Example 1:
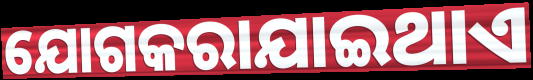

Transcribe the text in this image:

ଯୋଗକରାଯାଇଥାଏ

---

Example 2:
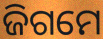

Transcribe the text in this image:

ଜିଗମେ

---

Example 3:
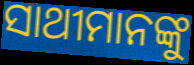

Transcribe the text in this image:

ସାଥୀମାନଙ୍କୁ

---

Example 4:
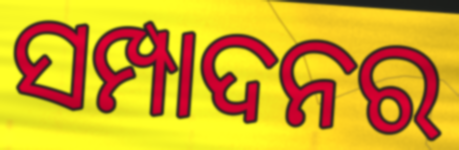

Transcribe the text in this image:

ସମ୍ପାଦନର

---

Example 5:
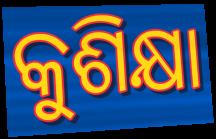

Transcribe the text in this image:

କୁଶିକ୍ଷା